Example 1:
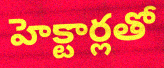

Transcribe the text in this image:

హెక్టార్లతో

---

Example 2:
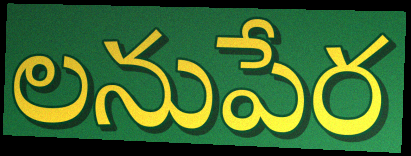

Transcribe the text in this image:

లనుపేర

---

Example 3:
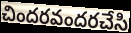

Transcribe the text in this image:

చిందరవందరచేసి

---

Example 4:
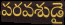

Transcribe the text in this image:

పరవశుడై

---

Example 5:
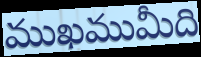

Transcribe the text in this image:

ముఖముమీది